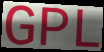
GPL